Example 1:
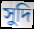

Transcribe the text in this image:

সুদি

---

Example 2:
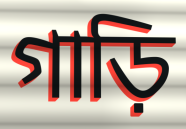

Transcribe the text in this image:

গাড়ি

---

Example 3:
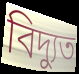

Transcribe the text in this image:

বিদ্যুত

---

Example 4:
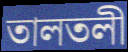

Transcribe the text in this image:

তালতলী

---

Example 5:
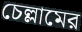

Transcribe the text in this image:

চেল্লামের